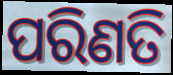
ପରିଣତି